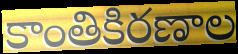
కాంతికిరణాల